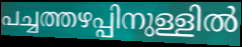
പച്ചത്തഴപ്പിനുള്ളിൽ